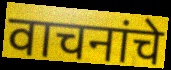
वाचनांचे